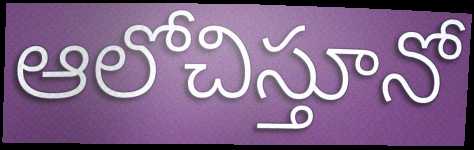
ఆలోచిస్తూనో